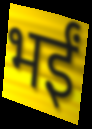
भईं